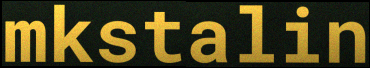
mkstalin